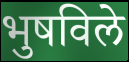
भुषविले